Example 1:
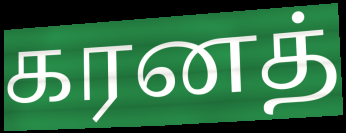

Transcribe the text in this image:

கரனத்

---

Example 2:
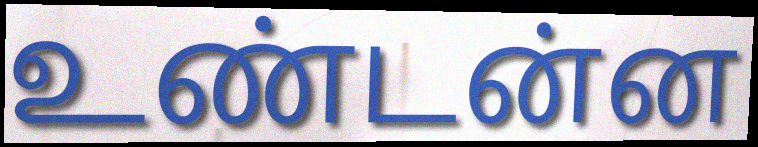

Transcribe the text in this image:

உண்டன்ன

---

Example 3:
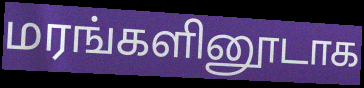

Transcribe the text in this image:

மரங்களினூடாக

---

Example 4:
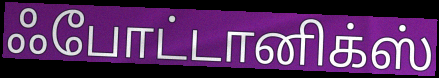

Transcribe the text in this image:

ஃபோட்டானிக்ஸ்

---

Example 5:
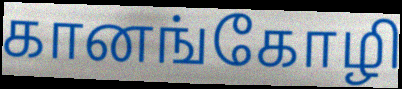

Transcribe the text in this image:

கானங்கோழி